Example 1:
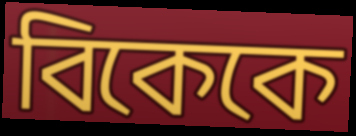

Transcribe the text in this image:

বিকেকে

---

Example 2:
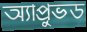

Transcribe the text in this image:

অ্যাপ্রুভড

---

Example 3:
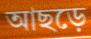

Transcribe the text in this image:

আছড়ে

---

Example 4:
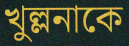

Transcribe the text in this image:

খুল্লনাকে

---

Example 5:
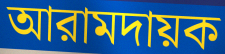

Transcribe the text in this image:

আরামদায়ক